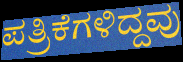
ಪತ್ರಿಕೆಗಳಿದ್ದವು